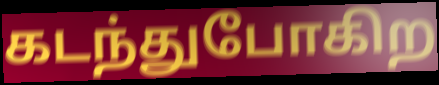
கடந்துபோகிற